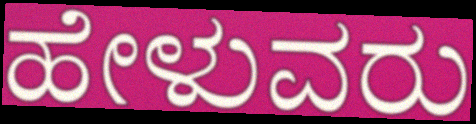
ಹೇಳುವರು